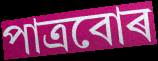
পাত্ৰবোৰ